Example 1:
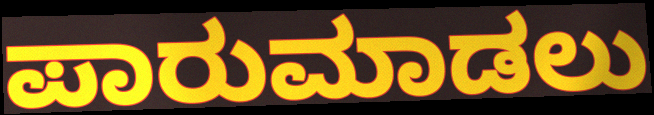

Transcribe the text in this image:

ಪಾರುಮಾಡಲು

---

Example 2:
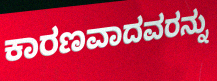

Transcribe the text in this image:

ಕಾರಣವಾದವರನ್ನು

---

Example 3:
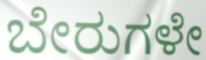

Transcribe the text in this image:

ಬೇರುಗಳೇ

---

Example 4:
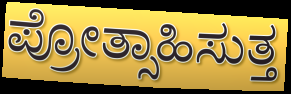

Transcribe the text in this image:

ಪ್ರೋತ್ಸಾಹಿಸುತ್ತ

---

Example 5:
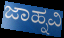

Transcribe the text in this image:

ಜಾಹ್ನವಿ